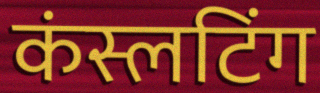
कंस्लटिंग